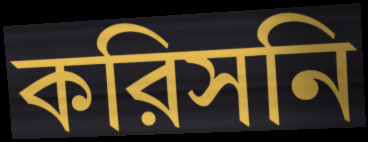
করিসনি